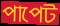
পাপেট